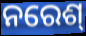
ନରେଶ୍